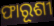
ଫାରୂଶୀ